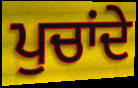
ਪੁਚਾਂਦੇ